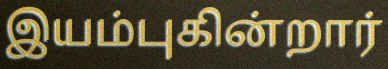
இயம்புகின்றார்